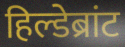
हिल्डेब्रांट